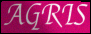
AGRIS